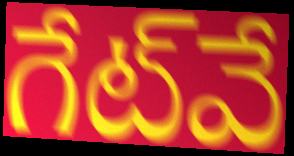
గేట్‌వే